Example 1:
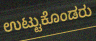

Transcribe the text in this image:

ಉಟ್ಟುಕೊಂಡರು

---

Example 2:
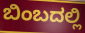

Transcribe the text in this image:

ಬಿಂಬದಲ್ಲಿ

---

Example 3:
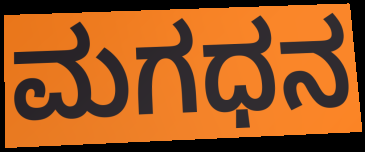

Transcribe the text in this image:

ಮಗಧನ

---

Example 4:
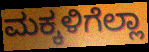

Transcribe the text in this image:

ಮಕ್ಕಳಿಗೆಲ್ಲಾ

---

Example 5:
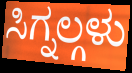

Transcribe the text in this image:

ಸಿಗ್ನಲ್ಗಳು